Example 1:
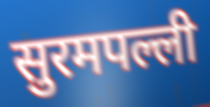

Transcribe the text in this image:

सुरमपल्ली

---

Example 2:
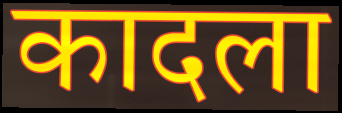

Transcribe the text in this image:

कादला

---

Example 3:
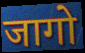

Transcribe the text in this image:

जागो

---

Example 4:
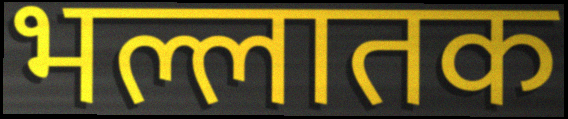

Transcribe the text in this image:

भल्लातक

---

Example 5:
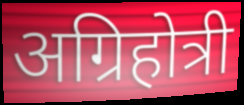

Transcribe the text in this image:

अग्रिहोत्री